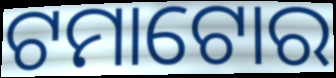
ଟମାଟୋର